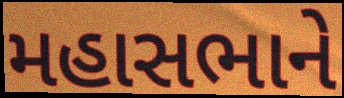
મહાસભાને